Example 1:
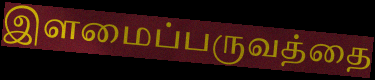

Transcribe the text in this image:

இளமைப்பருவத்தை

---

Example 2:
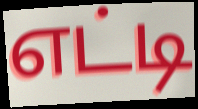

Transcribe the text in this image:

எட்டி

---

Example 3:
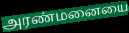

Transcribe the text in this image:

அரண்மனையை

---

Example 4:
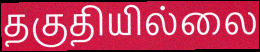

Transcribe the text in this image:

தகுதியில்லை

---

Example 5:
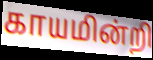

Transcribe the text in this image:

காயமின்றி